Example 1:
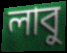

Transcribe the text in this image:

লাবু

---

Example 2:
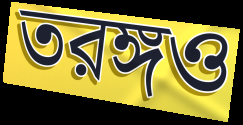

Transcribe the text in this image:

তরঙ্গও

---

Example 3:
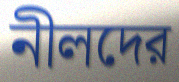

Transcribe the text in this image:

নীলদের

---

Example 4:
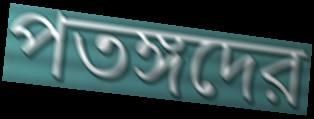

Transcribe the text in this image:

পতঙ্গদের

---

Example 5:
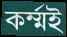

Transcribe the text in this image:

কর্ম্মই